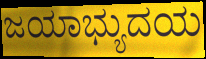
ಜಯಾಭ್ಯುದಯ